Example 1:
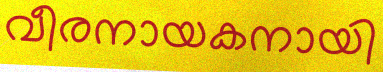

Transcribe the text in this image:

വീരനായകനായി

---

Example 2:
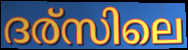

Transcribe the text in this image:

ദര്സിലെ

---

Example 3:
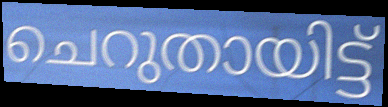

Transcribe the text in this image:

ചെറുതായിട്ട്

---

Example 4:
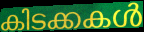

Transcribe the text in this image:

കിടക്കകൾ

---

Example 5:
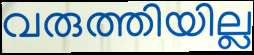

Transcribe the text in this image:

വരുത്തിയില്ല